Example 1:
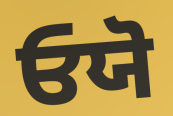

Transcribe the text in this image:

ਓਯੋ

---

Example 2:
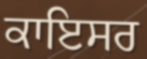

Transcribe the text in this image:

ਕਾਇਸਰ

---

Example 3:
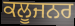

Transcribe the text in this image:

ਕਲੂਜਨਰ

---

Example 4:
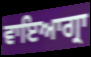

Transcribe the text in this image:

ਵਾਇਆਗ੍ਰਾ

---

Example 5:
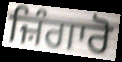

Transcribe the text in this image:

ਜ਼ਿੰਗਾਰੋ